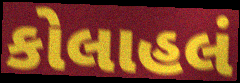
કોલાહલં